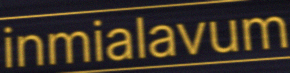
inmialavum